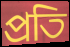
প্রতি